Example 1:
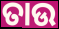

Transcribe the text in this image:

ତାଉ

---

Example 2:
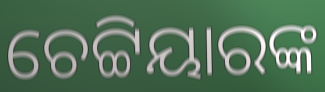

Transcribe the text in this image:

ଚେଟ୍ଟିୟାରଙ୍କ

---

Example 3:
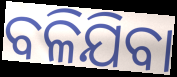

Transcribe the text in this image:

ବଳିଯିବା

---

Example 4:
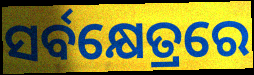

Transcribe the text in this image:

ସର୍ବକ୍ଷେତ୍ରରେ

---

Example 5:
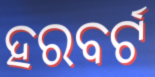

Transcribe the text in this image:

ହରବର୍ଟ